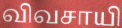
விவசாயி